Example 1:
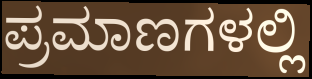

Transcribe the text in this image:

ಪ್ರಮಾಣಗಳಲ್ಲಿ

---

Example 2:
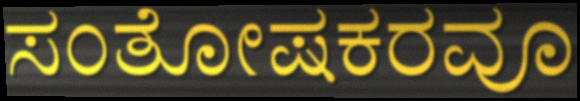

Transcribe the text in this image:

ಸಂತೋಷಕರವೂ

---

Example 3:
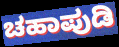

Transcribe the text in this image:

ಚಹಾಪುಡಿ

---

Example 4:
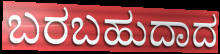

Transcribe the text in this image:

ಬರಬಹುದಾದ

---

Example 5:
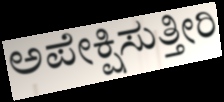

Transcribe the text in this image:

ಅಪೇಕ್ಷಿಸುತ್ತೀರಿ